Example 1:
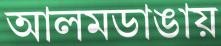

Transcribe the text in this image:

আলমডাঙায়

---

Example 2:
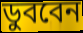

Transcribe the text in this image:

ডুববেন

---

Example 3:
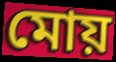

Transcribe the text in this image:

মোয়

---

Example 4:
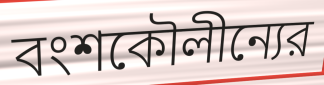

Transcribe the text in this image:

বংশকৌলীন্যের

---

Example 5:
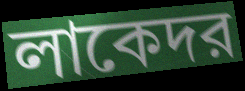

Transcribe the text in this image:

লাকেদর